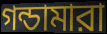
গন্ডামারা